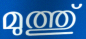
മുത്തു്